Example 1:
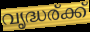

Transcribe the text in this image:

വൃദ്ധര്ക്ക്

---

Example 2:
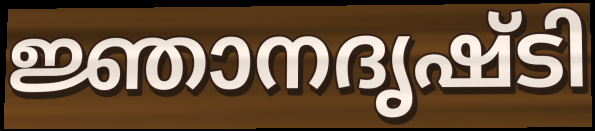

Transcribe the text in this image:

ജ്ഞാനദൃഷ്ടി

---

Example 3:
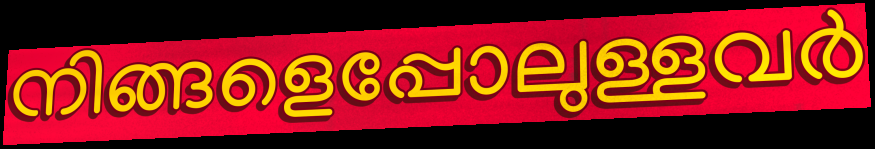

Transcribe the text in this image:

നിങ്ങളെപ്പോലുള്ളവർ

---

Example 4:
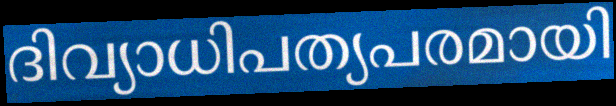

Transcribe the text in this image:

ദിവ്യാധിപത്യപരമായി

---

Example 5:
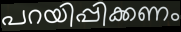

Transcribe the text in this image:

പറയിപ്പിക്കണം